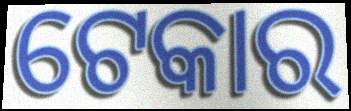
ଟେକାର